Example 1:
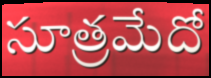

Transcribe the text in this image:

సూత్రమేదో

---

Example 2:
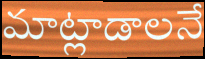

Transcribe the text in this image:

మాట్లాడాలనే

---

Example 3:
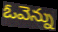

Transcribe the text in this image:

ఓవెన్ను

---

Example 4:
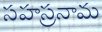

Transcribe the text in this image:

సహస్రనామ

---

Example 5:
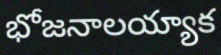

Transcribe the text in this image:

భోజనాలయ్యాక